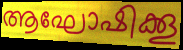
ആഘോഷിക്കൂ